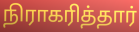
நிராகரித்தார்